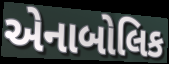
એનાબોલિક